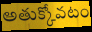
అతుక్కోవటం